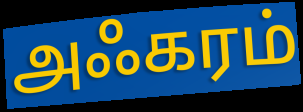
அஃகரம்